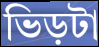
ভিড়টা